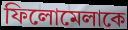
ফিলোমেলাকে